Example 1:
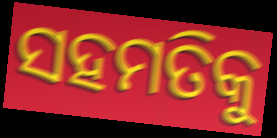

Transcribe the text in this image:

ସହମତିକୁ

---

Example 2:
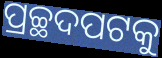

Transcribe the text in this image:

ପ୍ରଚ୍ଛଦପଟକୁ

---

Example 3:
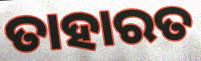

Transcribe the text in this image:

ତାହାରତ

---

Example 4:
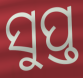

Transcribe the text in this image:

ସୁପ୍ତ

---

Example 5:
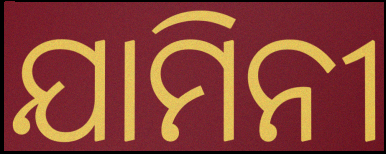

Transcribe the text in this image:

ଯାମିନୀ